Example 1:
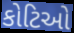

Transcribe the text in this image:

કોટિઓ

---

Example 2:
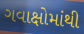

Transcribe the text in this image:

ગવાક્ષોમાંથી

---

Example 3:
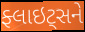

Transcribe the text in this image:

ફ્લાઇટ્સને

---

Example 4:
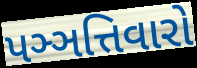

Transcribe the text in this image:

પઞ્ઞત્તિવારો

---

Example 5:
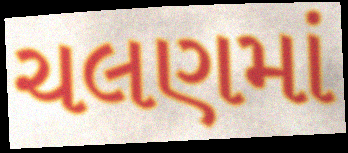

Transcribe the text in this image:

ચલણમાં